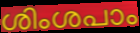
ശിംശപാം